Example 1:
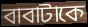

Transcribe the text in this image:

বাবাটাকে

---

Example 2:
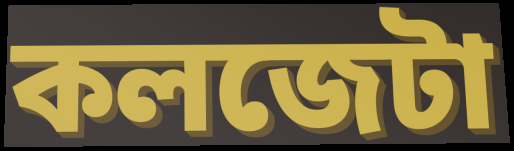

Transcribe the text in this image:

কলজেটা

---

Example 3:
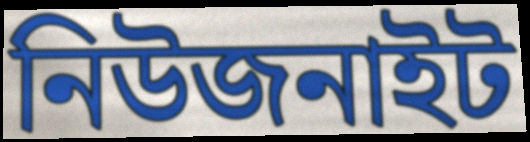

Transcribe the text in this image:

নিউজনাইট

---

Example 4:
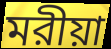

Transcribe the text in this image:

মরীয়া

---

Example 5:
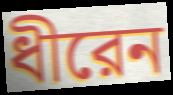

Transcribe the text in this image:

ধীরেন